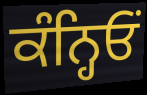
ਕੰਨ੍ਹਿਓਂ